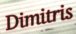
Dimitris